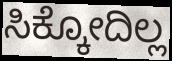
ಸಿಕ್ಕೋದಿಲ್ಲ